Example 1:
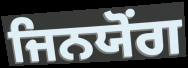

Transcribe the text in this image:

ਜਿਨਯੋਂਗ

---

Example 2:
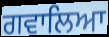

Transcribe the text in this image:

ਗਵਾਲਿਆ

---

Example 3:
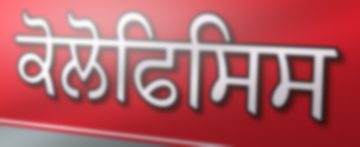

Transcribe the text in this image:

ਕੋਲੋਫਿਸਿਸ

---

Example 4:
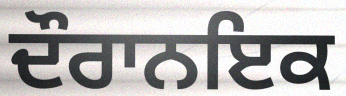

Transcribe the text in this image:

ਦੌਰਾਨਇਕ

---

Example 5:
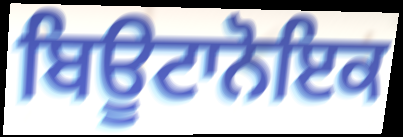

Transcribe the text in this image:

ਬਿਊਟਾਨੋਇਕ